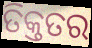
ତିକ୍ତତର